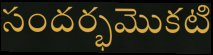
సందర్భమొకటి